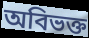
অবিভক্ত